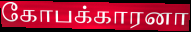
கோபக்காரனா